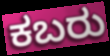
ಕಬರು